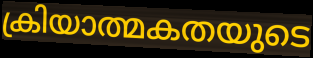
ക്രിയാത്മകതയുടെ